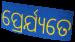
ପ୍ରେର୍ଯ୍ୟତେ